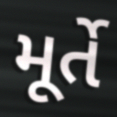
મૂર્તે